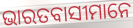
ଭାରତବାସୀମାନେ